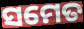
ସମେତ